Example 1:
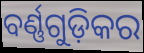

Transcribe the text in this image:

ବର୍ଣ୍ଣଗୁଡ଼ିକର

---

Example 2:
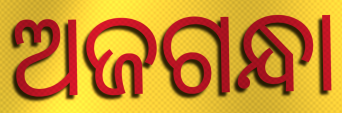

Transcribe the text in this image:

ଅଜଗନ୍ଧା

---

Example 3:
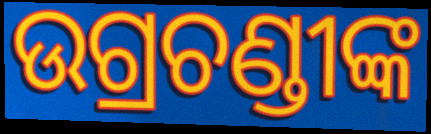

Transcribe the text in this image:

ଉଗ୍ରଚଣ୍ଡୀଙ୍କ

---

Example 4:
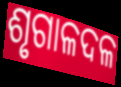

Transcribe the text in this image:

ଶୃଗାଳଦଳ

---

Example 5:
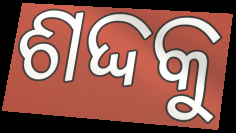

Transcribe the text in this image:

ଶଦ୍ଦକୁ